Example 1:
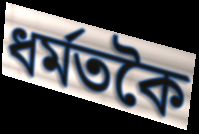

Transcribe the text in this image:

ধৰ্মতকৈ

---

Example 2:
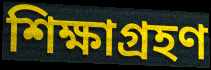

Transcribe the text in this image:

শিক্ষাগ্ৰহণ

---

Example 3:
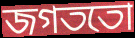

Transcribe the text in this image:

জগততো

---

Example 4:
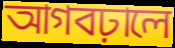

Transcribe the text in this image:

আগবঢ়ালে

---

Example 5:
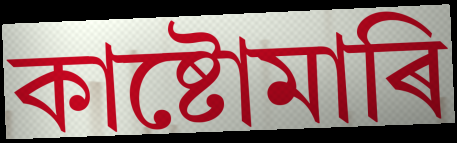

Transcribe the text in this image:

কাষ্টোমাৰি